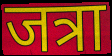
जत्रा